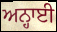
ਅਨ੍ਹਾਈ